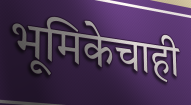
भूमिकेचाही